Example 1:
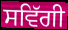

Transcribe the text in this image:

ਸਵਿੱਗੀ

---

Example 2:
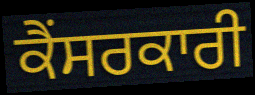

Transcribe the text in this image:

ਕੈਂਸਰਕਾਰੀ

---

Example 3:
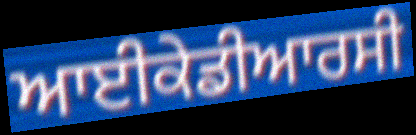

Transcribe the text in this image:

ਆਈਕੇਡੀਆਰਸੀ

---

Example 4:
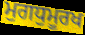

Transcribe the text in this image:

ਮੁਗਧੁਮੂਰਖ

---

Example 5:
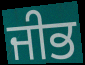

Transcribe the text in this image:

ਜੀਭ